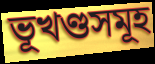
ভূখণ্ডসমূহ